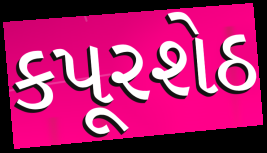
કપૂરશેઠ